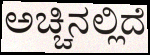
ಅಚ್ಚಿನಲ್ಲಿದೆ